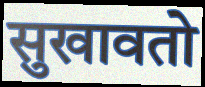
सुखावतो